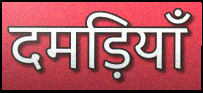
दमड़ियाँ